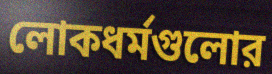
লোকধর্মগুলোর